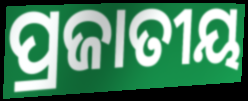
ପ୍ରଜାତୀୟ